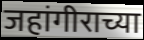
जहांगीराच्या